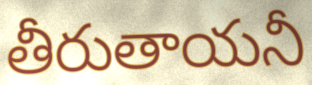
తీరుతాయనీ